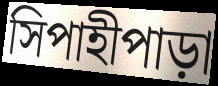
সিপাহীপাড়া